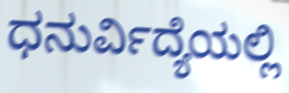
ಧನುರ್ವಿದ್ಯೆಯಲ್ಲಿ